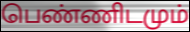
பெண்ணிடமும்